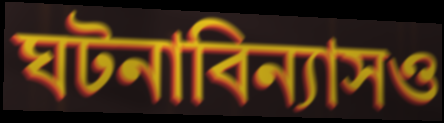
ঘটনাবিন্যাসও